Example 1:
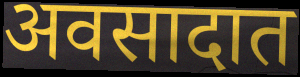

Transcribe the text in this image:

अवसादात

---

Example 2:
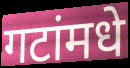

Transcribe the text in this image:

गटांमधे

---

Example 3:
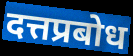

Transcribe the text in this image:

दत्तप्रबोध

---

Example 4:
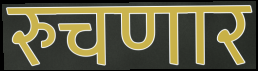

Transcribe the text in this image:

रुचणार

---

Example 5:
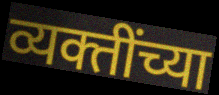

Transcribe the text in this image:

व्‍यक्‍तींच्‍या